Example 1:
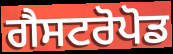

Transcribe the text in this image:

ਗੈਸਟਰੋਪੋਡ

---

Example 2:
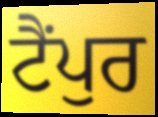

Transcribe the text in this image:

ਟੈਂਪੁਰ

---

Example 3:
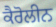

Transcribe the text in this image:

ਕੈਰੋਲੀਨ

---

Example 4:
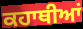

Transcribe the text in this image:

ਕਹਾਥੀਆਂ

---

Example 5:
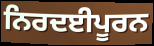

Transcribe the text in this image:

ਨਿਰਦਈਪੂਰਨ